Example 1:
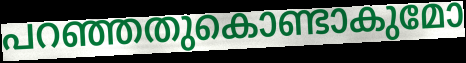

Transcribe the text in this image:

പറഞ്ഞതുകൊണ്ടാകുമോ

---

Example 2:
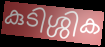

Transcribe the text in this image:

കുടിശ്ശിക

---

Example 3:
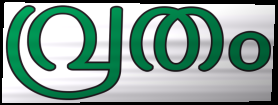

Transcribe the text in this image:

വ്രതം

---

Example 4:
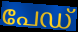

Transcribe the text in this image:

പേഡ്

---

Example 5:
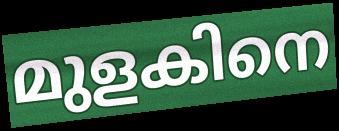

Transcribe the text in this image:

മുളകിനെ